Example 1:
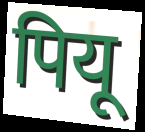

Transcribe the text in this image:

पियू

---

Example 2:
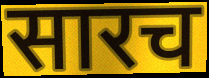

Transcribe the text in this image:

सारच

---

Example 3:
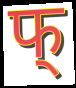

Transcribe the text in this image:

फ्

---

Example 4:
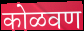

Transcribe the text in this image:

कोळवण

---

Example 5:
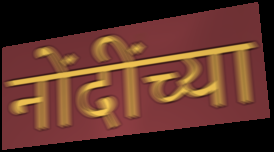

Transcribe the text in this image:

नोंदींच्या